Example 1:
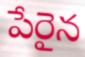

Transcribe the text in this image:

పేరైన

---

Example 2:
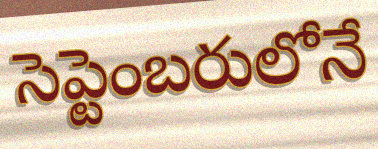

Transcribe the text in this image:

సెప్టెంబరులోనే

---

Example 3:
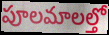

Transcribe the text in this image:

పూలమాలల్తో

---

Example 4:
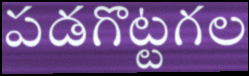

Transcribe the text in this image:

పడగొట్టగల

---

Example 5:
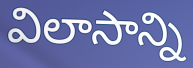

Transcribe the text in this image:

విలాసాన్ని